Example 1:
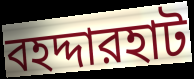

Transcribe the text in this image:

বহদ্দারহাট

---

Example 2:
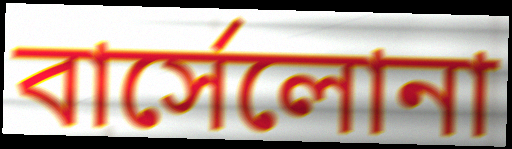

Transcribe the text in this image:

বার্সেলোনা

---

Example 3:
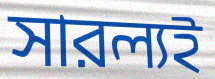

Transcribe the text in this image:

সারল্যই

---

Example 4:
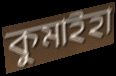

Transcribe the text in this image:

কুমাইহা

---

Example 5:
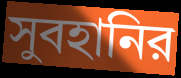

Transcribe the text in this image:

সুবহানির